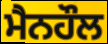
ਮੈਨਹੌਲ